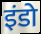
इंडो